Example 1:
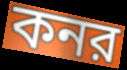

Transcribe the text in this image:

কনর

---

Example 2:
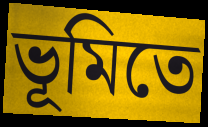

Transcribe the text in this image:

ভূমিতে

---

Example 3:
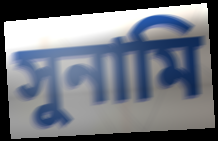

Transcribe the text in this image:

সুনামি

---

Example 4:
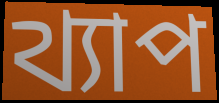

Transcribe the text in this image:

থ্যাপ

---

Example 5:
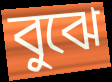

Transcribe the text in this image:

বুঝে